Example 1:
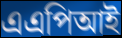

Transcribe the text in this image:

এএপিআই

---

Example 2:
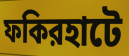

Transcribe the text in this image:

ফকিরহাটে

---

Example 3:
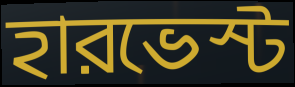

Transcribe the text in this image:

হারভেস্ট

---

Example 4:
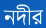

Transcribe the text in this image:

নদীর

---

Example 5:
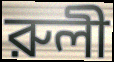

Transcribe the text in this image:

রুলী